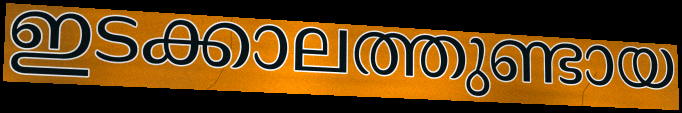
ഇടക്കാലത്തുണ്ടായ